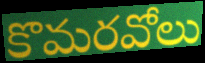
కొమరవోలు